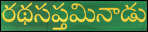
రథసప్తమినాడు